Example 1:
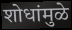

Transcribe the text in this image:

शोधांमुळे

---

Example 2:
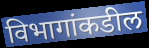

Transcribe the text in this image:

विभागांकडील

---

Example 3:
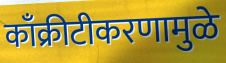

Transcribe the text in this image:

काँक्रीटीकरणामुळे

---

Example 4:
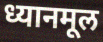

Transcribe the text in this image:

ध्यानमूल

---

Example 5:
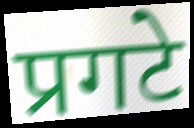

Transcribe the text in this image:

प्रगटे